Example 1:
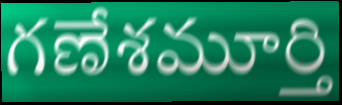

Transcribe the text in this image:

గణేశమూర్తి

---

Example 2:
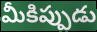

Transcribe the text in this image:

మీకిప్పుడు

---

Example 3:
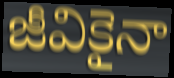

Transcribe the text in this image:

జీవికైనా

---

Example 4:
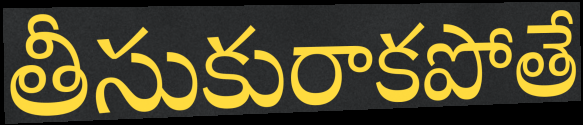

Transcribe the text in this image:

తీసుకురాకపోతే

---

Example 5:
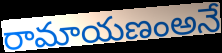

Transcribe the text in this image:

రామాయణంఅనే